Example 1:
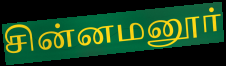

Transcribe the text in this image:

சின்னமனூர்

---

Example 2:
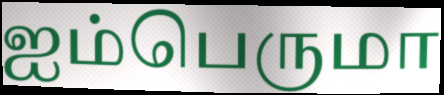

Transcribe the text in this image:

ஐம்பெருமா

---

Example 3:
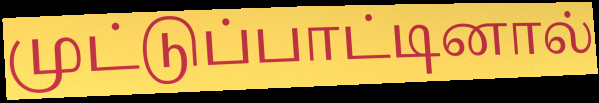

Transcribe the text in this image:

முட்டுப்பாட்டினால்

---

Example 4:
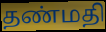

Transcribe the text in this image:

தண்மதி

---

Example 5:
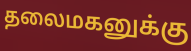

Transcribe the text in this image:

தலைமகனுக்கு